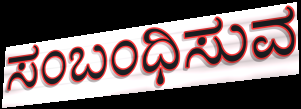
ಸಂಬಂಧಿಸುವ